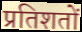
प्रतिशतों